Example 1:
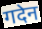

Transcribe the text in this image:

गदेन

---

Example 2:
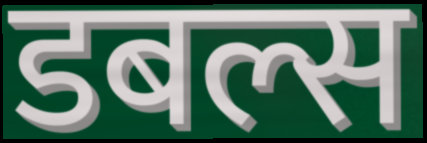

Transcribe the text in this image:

डबल्‍स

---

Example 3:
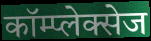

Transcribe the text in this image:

कॉम्प्लेक्सेज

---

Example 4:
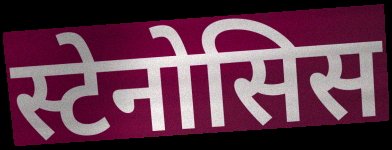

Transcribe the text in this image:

स्टेनोसिस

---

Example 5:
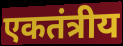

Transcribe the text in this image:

एकतंत्रीय